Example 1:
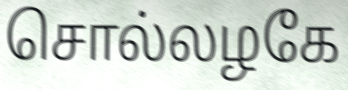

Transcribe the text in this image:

சொல்லழகே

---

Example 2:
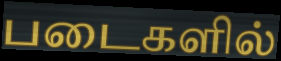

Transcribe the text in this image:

படைகளில்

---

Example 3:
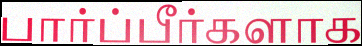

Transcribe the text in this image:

பார்ப்பீர்களாக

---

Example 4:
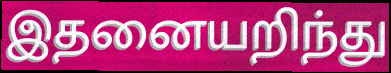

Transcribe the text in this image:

இதனையறிந்து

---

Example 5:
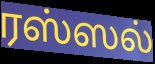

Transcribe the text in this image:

ரஸ்ஸல்